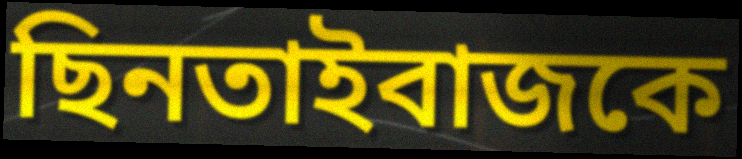
ছিনতাইবাজকে